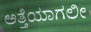
ಅತ್ತೆಯಾಗಲೀ